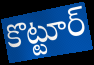
కొట్టూర్